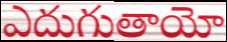
ఎదుగుతాయో